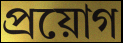
প্রয়োগ